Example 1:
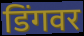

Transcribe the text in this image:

डिंगवर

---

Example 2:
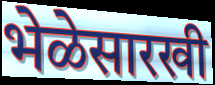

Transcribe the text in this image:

भेळेसारखी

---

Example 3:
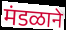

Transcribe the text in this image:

मंडळाने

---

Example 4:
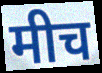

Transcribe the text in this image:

मीच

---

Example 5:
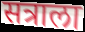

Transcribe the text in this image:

सत्राला